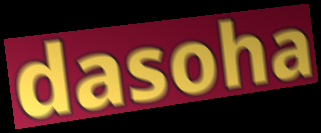
dasoha